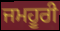
ਜਮਹੂਰੀ